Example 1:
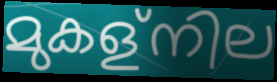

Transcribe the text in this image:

മുകള്നില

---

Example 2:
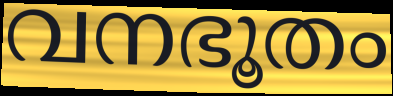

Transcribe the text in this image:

വനഭൂതം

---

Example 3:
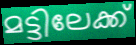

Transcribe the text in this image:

മട്ടിലേക്ക്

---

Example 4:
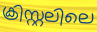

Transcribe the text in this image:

ക്രിസ്റ്റലിലെ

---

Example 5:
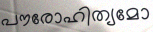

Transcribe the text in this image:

പൗരോഹിത്യമോ